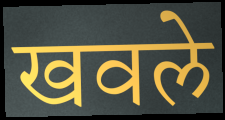
खवले